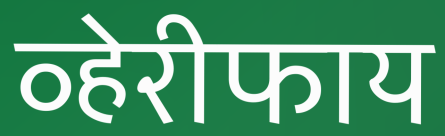
व्हेरीफाय